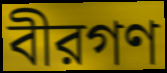
বীরগণ